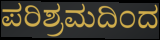
ಪರಿಶ್ರಮದಿಂದ